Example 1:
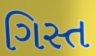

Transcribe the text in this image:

ગિસ્ત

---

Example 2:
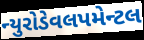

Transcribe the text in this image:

ન્યુરોડેવલપમેન્ટલ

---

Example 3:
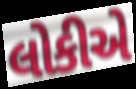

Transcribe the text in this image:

લોકીએ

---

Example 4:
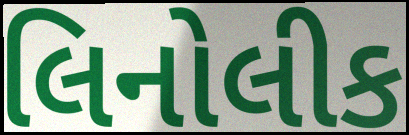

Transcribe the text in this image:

લિનોલીક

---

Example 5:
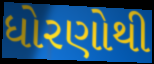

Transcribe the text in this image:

ધોરણોથી